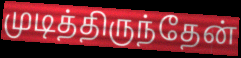
முடித்திருந்தேன்